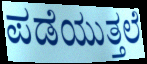
ಪಡೆಯುತ್ತಲೆ